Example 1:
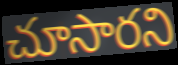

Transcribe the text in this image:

చూసారని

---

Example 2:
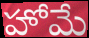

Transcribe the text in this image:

హోమే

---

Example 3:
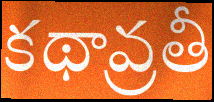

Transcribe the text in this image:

కథావ్రతీ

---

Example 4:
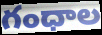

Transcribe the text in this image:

గంధాల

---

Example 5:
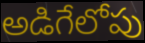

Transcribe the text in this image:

అడిగేలోపు